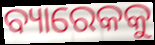
ବ୍ୟାରେକକୁ